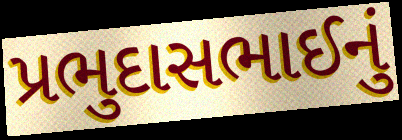
પ્રભુદાસભાઈનું